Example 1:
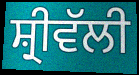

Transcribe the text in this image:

ਸ਼੍ਰੀਵੱਲੀ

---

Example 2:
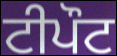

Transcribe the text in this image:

ਟੀਪੌਟ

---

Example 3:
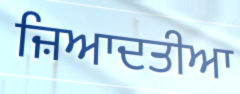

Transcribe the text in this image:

ਜ਼ਿਆਦਤੀਆ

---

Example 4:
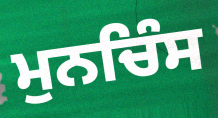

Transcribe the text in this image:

ਮੁਨਚਿੰਸ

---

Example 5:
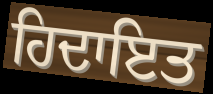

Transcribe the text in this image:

ਹਿਦਾਇਤ